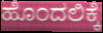
ಹೊಂದಲಿಕ್ಕೆ